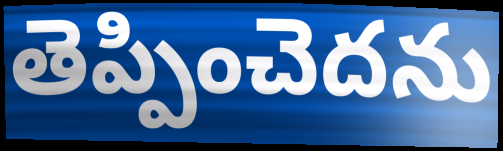
తెప్పించెదను